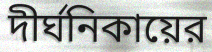
দীর্ঘনিকায়ের